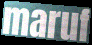
maruf